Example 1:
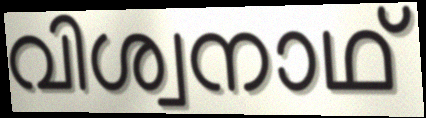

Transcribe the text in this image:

വിശ്വനാഥ്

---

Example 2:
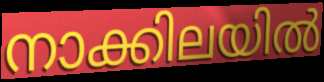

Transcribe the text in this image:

നാക്കിലയിൽ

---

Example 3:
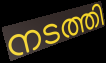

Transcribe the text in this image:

നടത്തി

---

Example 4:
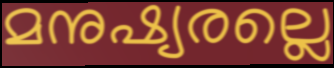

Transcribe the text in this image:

മനുഷ്യരല്ലെ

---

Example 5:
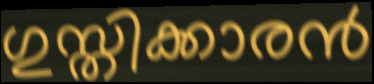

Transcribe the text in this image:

ഗുസ്തിക്കാരൻ